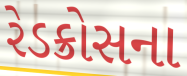
રેડક્રોસના